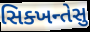
સિક્ખન્તેસુ